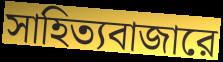
সাহিত্যবাজারে